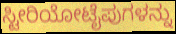
ಸ್ಟೀರಿಯೋಟೈಪುಗಳನ್ನು